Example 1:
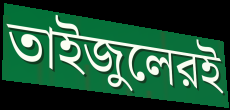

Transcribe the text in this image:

তাইজুলেরই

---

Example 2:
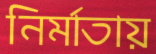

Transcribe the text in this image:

নির্মাতায়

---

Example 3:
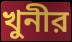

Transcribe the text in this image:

খুনীর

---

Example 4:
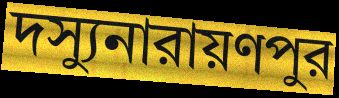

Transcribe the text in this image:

দস্যুনারায়ণপুর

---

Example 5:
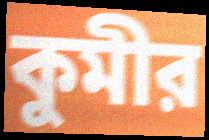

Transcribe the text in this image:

কুমীর